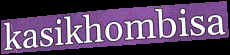
kasikhombisa